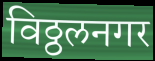
विठ्ठलनगर